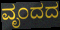
ವೃಂದದ